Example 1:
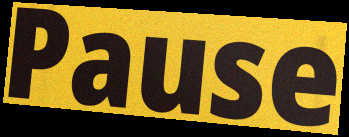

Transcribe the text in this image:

Pause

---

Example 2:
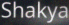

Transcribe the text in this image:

Shakya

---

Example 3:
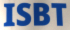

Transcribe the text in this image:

ISBT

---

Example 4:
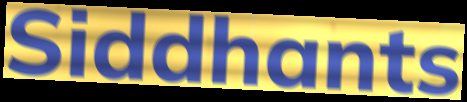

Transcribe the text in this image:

Siddhants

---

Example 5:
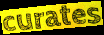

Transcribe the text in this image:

curates